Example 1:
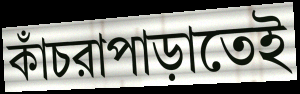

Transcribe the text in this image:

কাঁচরাপাড়াতেই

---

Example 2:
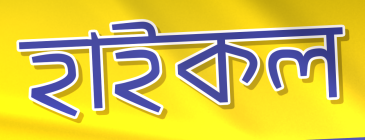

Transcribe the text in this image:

হাইকল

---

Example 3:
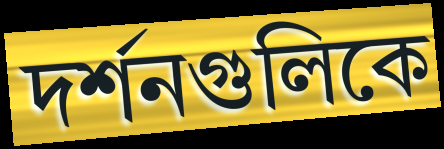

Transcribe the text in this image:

দর্শনগুলিকে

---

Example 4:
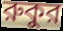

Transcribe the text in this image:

রুকুর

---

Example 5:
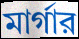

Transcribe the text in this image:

মার্গার